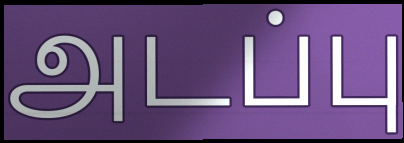
அடப்பு